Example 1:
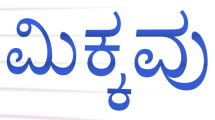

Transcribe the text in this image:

ಮಿಕ್ಕವು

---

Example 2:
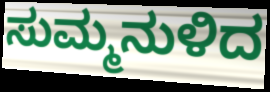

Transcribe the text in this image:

ಸುಮ್ಮನುಳಿದ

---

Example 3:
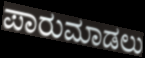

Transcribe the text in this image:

ಪಾರುಮಾಡಲು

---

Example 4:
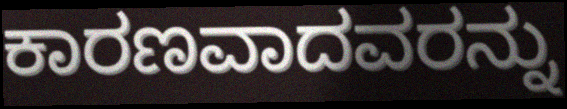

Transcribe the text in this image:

ಕಾರಣವಾದವರನ್ನು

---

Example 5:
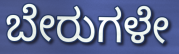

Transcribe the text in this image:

ಬೇರುಗಳೇ